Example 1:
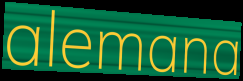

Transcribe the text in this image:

alemana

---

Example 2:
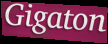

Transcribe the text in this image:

Gigaton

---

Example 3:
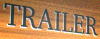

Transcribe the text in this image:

TRAILER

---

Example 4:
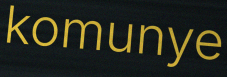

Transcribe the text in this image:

komunye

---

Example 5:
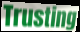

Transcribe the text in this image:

Trusting